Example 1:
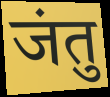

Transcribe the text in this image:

जंतु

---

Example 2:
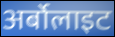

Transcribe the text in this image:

अर्बोलाइट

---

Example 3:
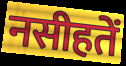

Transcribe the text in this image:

नसीहतें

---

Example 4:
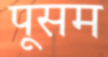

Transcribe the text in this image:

पूसम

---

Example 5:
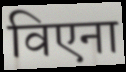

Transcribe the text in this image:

विएना